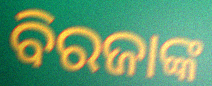
ବିରଜାଙ୍କ